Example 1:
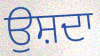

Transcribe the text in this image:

ਉਸ਼ਦਾ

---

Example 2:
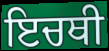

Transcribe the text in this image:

ਇਚਥੀ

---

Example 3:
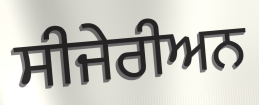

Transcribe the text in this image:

ਸੀਜੇਰੀਅਨ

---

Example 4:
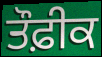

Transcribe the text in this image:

ਤੌਫ਼ੀਕ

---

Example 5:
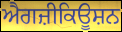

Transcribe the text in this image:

ਐਗਜ਼ੀਕਿਊਸ਼ਨ